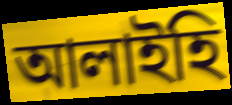
আলাইহি